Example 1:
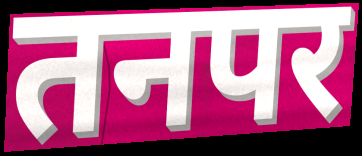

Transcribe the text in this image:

तनपर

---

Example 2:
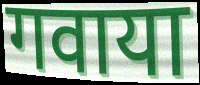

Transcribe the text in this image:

गवाया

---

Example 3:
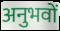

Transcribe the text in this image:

अनुभवों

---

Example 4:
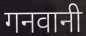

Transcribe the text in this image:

गनवानी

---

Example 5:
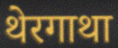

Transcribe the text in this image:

थेरगाथा